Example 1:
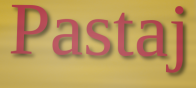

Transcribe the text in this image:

Pastaj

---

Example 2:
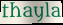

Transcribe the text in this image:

thayla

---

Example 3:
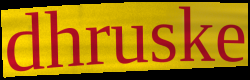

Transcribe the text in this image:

dhruske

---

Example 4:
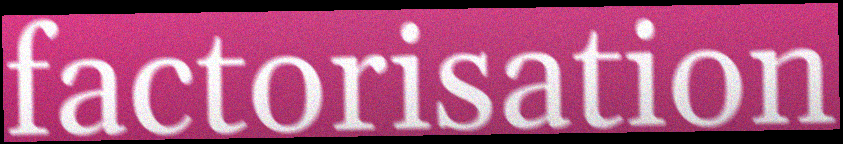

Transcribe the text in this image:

factorisation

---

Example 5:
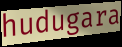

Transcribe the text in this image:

hudugara